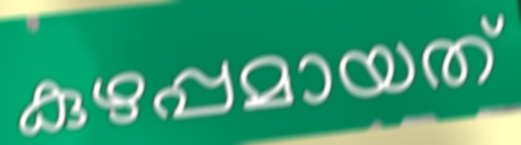
കുഴപ്പമായത്